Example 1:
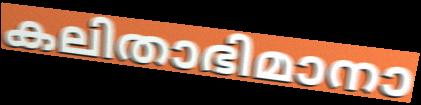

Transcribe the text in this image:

കലിതാഭിമാനാ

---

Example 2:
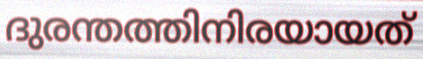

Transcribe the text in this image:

ദുരന്തത്തിനിരയായത്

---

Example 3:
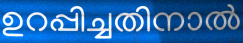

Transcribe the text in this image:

ഉറപ്പിച്ചതിനാൽ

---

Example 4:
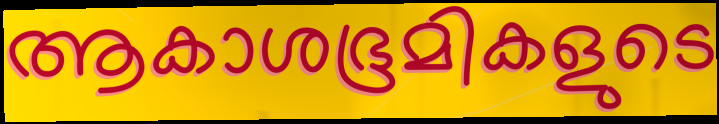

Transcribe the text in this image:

ആകാശഭൂമികളുടെ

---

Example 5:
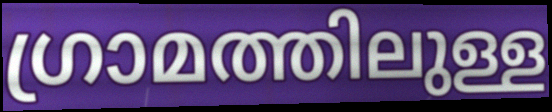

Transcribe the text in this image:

ഗ്രാമത്തിലുള്ള